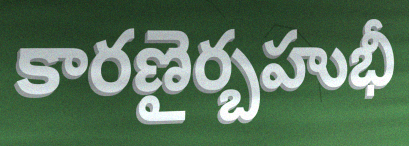
కారణైర్బహుభీ